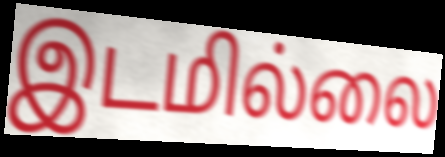
இடமில்லை